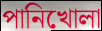
পানিখোলা